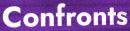
Confronts